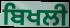
ਬਿਖਲੀ